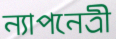
ন্যাপনেত্রী